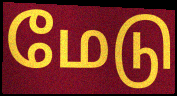
மேடு